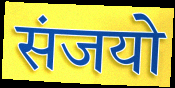
संजयो